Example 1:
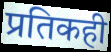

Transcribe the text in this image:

प्रतिकही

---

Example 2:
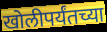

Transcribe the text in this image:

खोलीपर्यंतच्या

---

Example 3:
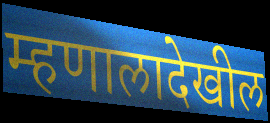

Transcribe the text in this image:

म्हणालादेखील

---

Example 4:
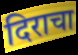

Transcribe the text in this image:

दिराचा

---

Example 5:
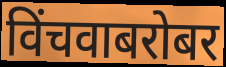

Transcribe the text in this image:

विंचवाबरोबर